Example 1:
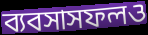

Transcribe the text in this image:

ব্যবসাসফলও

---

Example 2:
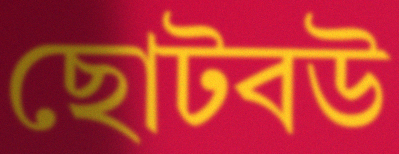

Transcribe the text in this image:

ছোটবউ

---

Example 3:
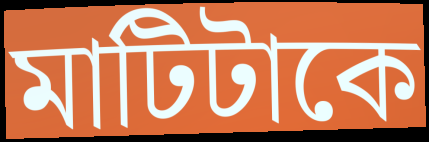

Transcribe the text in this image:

মাটিটাকে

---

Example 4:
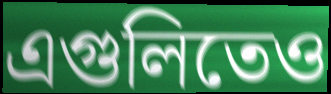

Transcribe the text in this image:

এগুলিতেও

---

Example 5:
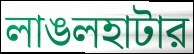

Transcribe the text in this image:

লাঙলহাটার